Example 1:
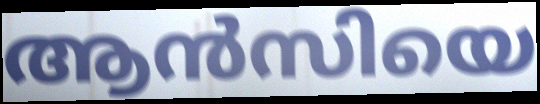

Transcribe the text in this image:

ആൻസിയെ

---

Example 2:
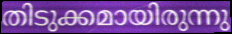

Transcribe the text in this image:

തിടുക്കമായിരുന്നു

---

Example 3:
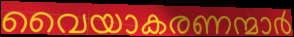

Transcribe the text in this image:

വൈയാകരണന്മാർ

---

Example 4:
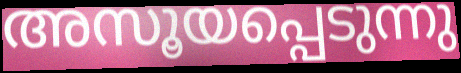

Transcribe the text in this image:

അസൂയപ്പെടുന്നു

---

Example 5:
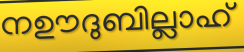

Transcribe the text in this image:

നഊദുബില്ലാഹ്